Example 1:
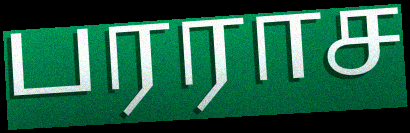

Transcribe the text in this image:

பரராச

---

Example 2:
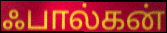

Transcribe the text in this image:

ஃபால்கன்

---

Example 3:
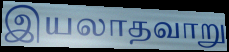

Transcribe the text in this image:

இயலாதவாறு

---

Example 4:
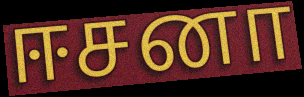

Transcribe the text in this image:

ஈசனா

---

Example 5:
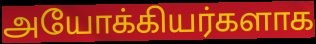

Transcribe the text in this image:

அயோக்கியர்களாக